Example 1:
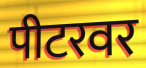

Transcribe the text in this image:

पीटरवर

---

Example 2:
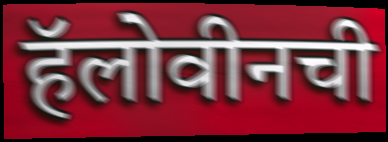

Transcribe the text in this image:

हॅलोवीनची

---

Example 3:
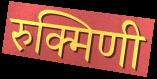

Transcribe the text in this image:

रुक्मिणी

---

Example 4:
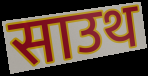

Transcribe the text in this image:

साउथ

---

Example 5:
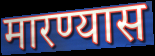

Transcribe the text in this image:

मारण्यास